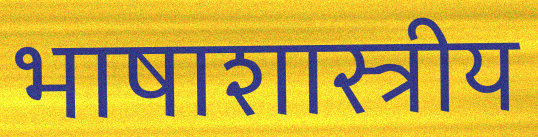
भाषाशास्त्रीय